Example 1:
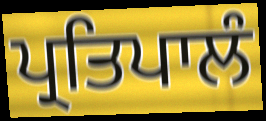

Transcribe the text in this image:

ਪ੍ਰਤਿਪਾਲੰ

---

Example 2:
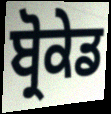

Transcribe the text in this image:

ਬ੍ਰੋਕੇਡ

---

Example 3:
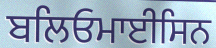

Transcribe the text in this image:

ਬਲਿਓਮਾਈਸਿਨ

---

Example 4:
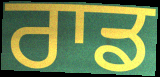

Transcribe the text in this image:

ਰਾਡ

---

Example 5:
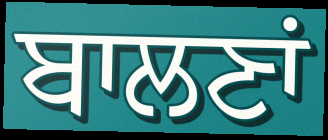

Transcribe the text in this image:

ਬਾਲਣਾਂ